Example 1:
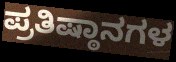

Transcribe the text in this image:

ಪ್ರತಿಷ್ಠಾನಗಳ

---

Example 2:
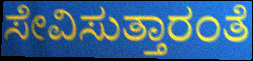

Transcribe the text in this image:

ಸೇವಿಸುತ್ತಾರಂತೆ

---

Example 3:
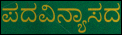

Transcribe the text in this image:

ಪದವಿನ್ಯಾಸದ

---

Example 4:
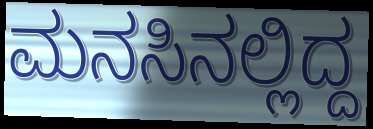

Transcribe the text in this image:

ಮನಸಿನಲ್ಲಿದ್ದ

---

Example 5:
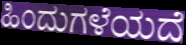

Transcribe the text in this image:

ಹಿಂದುಗಳೆಯದೆ